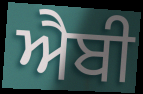
ਐਬੀ